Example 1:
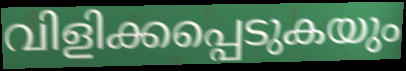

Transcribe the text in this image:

വിളിക്കപ്പെടുകയും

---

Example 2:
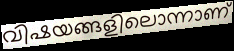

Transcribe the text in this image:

വിഷയങ്ങളിലൊന്നാണ്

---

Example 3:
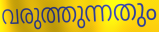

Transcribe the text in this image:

വരുത്തുന്നതും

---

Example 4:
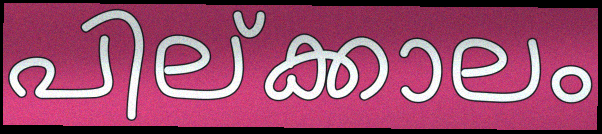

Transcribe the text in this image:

പില്ക്കാലം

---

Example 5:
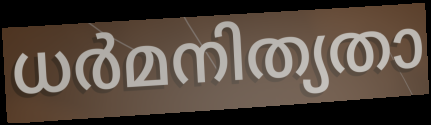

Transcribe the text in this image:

ധർമനിത്യതാ